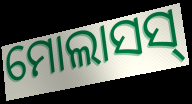
ମୋଲାସସ୍